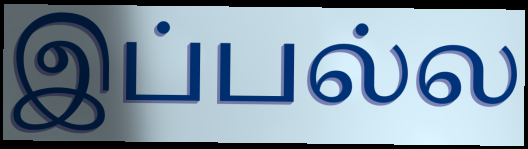
இப்பல்ல